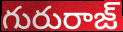
గురురాజ్